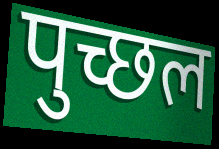
पुच्छल